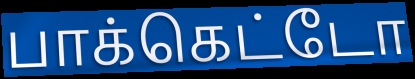
பாக்கெட்டோ